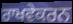
ਰਾਖਵੇਕਰਨ